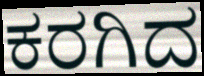
ಕರಗಿದ